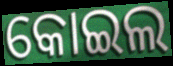
କୋଇଲ